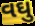
વઘુ